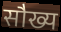
सौख्य